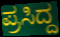
ಪ್ರಸಿದ್ದ